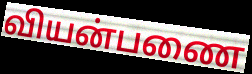
வியன்பணை